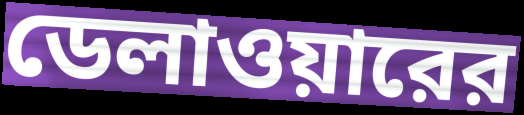
ডেলাওয়ারের